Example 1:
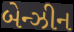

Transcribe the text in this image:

બેન્ઝીન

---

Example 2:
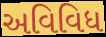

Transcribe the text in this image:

અવિવિધ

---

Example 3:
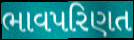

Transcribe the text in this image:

ભાવપરિણત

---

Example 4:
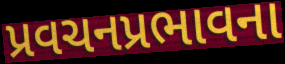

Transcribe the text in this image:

પ્રવચનપ્રભાવના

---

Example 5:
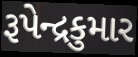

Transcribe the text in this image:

રૂપેન્દ્રકુમાર